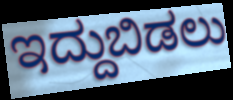
ಇದ್ದುಬಿಡಲು